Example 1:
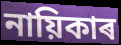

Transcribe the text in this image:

নায়িকাৰ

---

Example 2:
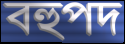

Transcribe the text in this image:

বহুপদ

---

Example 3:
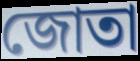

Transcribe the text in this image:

জোতা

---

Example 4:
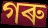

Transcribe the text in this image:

গৰু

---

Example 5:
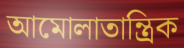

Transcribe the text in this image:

আমোলাতান্ত্ৰিক